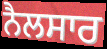
ਨੈਲਸਾਰ